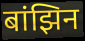
बांझिन